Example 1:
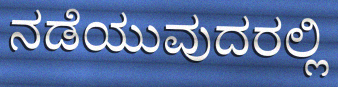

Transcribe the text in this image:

ನಡೆಯುವುದರಲ್ಲಿ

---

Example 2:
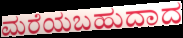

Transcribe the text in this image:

ಮರೆಯಬಹುದಾದ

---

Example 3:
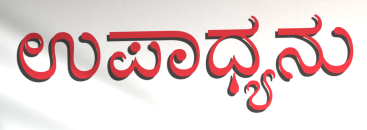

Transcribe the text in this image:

ಉಪಾಧ್ಯನು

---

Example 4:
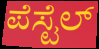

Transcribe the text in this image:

ಪೆಸ್ಟೆಲ್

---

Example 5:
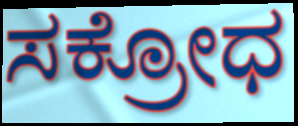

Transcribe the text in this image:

ಸಕ್ರೋಧ